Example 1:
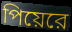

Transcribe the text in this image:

পিয়েরে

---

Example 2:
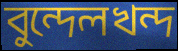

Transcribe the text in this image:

বুন্দেলখন্দ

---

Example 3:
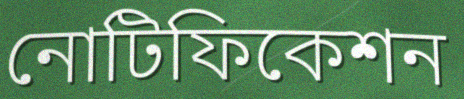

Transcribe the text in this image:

নোটিফিকেশন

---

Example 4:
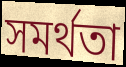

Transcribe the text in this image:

সমর্থতা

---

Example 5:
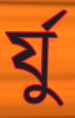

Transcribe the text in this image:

র্যু